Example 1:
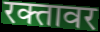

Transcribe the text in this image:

रक्तावर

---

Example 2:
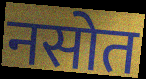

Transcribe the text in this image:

नसोत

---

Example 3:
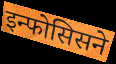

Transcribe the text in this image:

इन्फोसिसने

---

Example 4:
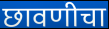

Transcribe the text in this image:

छावणीचा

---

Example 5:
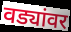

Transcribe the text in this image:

वड्यांवर